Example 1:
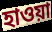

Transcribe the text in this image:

হাওয়া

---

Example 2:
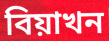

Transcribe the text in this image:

বিয়াখন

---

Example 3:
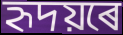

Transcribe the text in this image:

হৃদয়ৰে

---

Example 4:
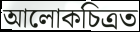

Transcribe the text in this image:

আলোকচিত্ৰত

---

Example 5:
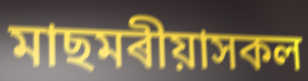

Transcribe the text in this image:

মাছমৰীয়াসকল